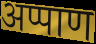
अप्पाण